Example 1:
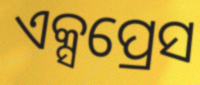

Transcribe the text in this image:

ଏକ୍ସପ୍ରେସ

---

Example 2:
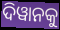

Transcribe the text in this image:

ଦିୱାନକୁ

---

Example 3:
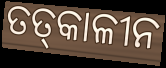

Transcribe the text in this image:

ତତ୍‍କାଳୀନ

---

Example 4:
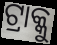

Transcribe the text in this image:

ଟ୍ରାକ୍କୁ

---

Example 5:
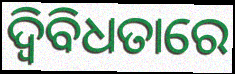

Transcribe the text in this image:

ଦ୍ୱିବିଧତାରେ